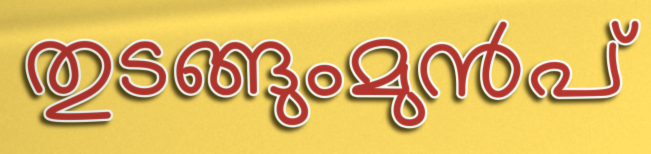
തുടങ്ങുംമുൻപ്